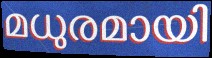
മധുരമായി